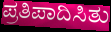
ಪ್ರತಿಪಾದಿಸಿತು